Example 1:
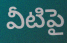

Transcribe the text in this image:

వీటిపై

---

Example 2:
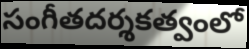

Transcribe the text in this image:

సంగీతదర్శకత్వంలో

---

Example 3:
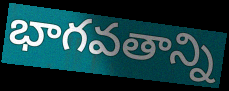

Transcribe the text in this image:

భాగవతాన్ని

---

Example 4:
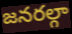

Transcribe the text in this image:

జనరల్గా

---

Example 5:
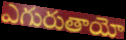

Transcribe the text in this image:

ఎగురుతాయో